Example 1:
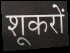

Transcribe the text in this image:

शूकरों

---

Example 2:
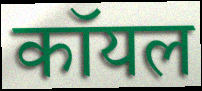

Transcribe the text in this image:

कॉयल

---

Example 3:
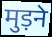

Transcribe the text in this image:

मुड़ने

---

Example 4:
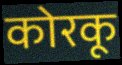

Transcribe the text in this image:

कोरकू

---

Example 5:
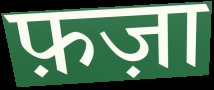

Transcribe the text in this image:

फ़ज़ा